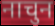
नाचुन